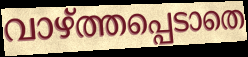
വാഴ്ത്തപ്പെടാതെ